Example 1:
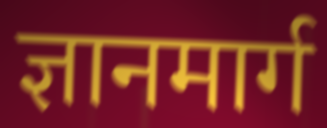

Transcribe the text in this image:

ज्ञानमार्ग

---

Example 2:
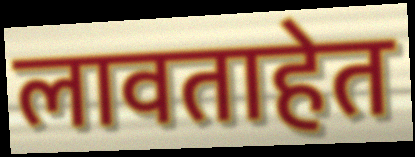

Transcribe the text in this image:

लावताहेत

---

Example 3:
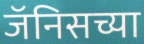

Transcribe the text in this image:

जॅनिसच्या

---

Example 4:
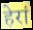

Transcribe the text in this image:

हेरां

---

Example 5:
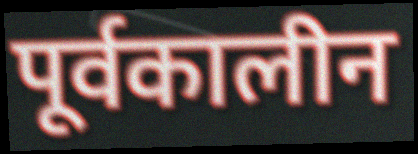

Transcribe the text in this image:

पूर्वकालीन